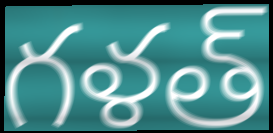
గళత్